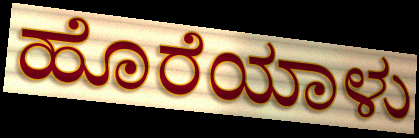
ಹೊರೆಯಾಳು